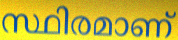
സ്ഥിരമാണ്